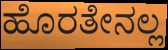
ಹೊರತೇನಲ್ಲ